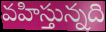
వహిస్తున్నది